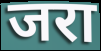
जरा